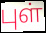
புள்